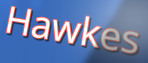
Hawkes